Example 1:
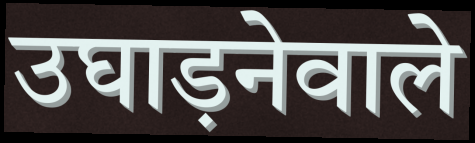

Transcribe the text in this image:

उघाड़नेवाले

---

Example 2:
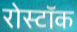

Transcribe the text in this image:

रोस्टॉक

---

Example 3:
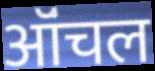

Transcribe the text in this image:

ऑंचल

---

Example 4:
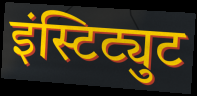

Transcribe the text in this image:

इंस्टिट्युट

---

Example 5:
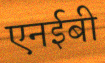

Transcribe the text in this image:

एनईबी